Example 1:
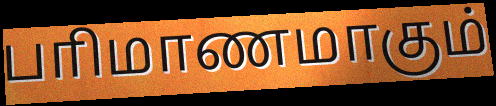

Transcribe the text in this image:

பரிமாணமாகும்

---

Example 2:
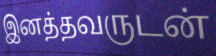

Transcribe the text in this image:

இனத்தவருடன்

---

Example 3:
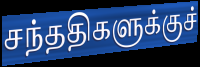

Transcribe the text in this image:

சந்ததிகளுக்குச்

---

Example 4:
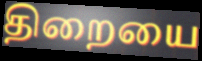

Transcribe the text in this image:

திறையை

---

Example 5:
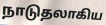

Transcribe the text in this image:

நாடுதலாகிய